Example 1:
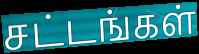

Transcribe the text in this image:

சட்டங்கள்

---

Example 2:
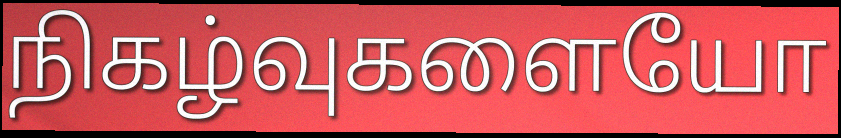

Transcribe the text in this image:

நிகழ்வுகளையோ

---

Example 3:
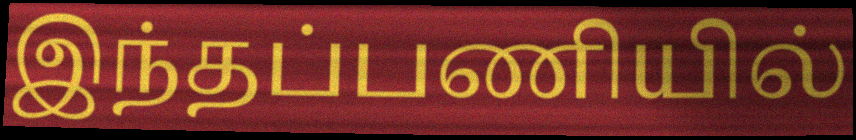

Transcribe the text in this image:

இந்தப்பணியில்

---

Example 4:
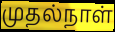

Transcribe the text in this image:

முதல்நாள்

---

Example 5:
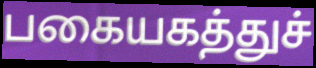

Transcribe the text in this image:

பகையகத்துச்